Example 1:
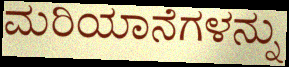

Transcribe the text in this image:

ಮರಿಯಾನೆಗಳನ್ನು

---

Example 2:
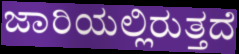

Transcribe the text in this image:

ಜಾರಿಯಲ್ಲಿರುತ್ತದೆ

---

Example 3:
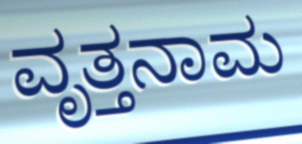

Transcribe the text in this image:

ವೃತ್ತನಾಮ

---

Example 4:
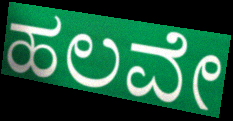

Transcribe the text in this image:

ಹಲವೇ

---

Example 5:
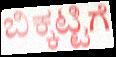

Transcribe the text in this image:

ಬಿಕ್ಕಟ್ಟಿಗೆ